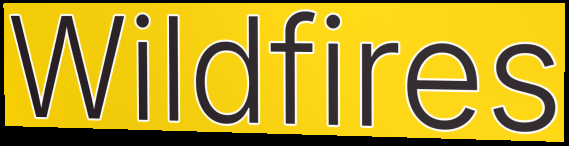
Wildfires